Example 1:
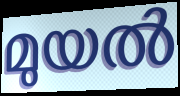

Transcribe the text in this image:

മുയൽ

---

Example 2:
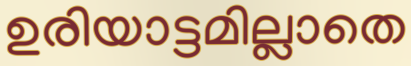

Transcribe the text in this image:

ഉരിയാട്ടമില്ലാതെ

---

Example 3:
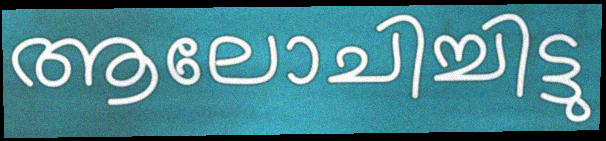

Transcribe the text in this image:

ആലോചിച്ചിട്ടു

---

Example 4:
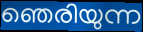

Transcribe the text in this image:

ഞെരിയുന്ന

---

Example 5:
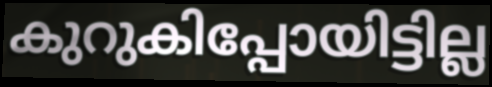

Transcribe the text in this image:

കുറുകിപ്പോയിട്ടില്ല